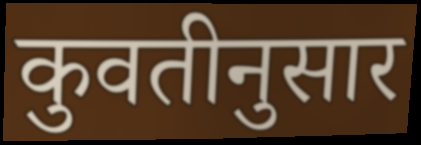
कुवतीनुसार